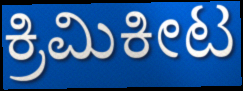
ಕ್ರಿಮಿಕೀಟ